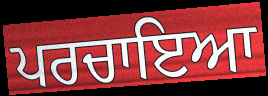
ਪਰਚਾਇਆ